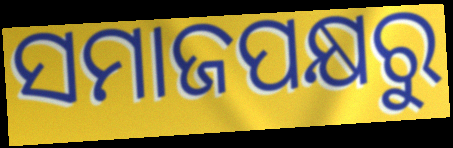
ସମାଜପକ୍ଷରୁ